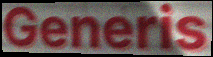
Generis